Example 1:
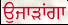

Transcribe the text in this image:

ਉਜਾੜਾਂਗਾ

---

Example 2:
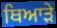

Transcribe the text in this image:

ਥਿਆੜੇ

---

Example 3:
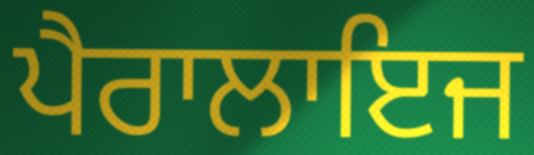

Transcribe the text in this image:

ਪੈਰਾਲਾਇਜ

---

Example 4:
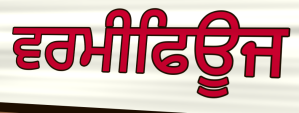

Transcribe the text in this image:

ਵਰਮੀਫਿਊਜ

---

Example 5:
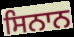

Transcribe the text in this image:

ਸਿਨਾਨ